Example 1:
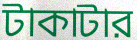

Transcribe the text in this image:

টাকাটার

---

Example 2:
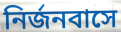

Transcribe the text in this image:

নির্জনবাসে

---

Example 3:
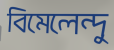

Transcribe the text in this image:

বিমেলেন্দু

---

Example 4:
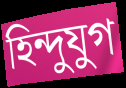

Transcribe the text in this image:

হিন্দুযুগ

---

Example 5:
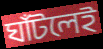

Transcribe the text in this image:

ঘাঁটলেই